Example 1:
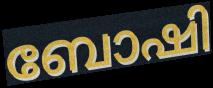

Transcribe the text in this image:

ബോഷി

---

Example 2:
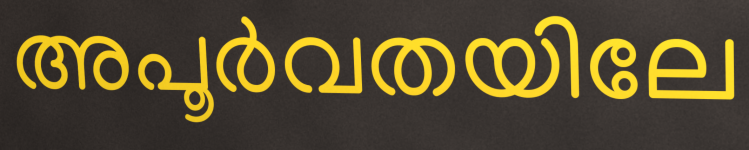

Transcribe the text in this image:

അപൂർവതയിലേ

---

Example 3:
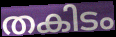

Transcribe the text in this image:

തകിടം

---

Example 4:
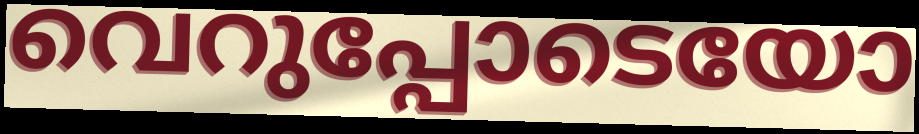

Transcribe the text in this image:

വെറുപ്പോടെയോ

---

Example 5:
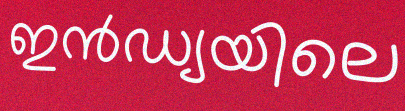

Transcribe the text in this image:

ഇൻഡ്യയിലെ